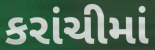
કરાંચીમાં